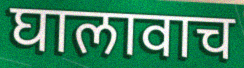
घालावाच